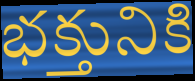
భక్తునికి